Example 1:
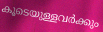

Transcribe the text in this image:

കൂടെയുള്ളവർക്കും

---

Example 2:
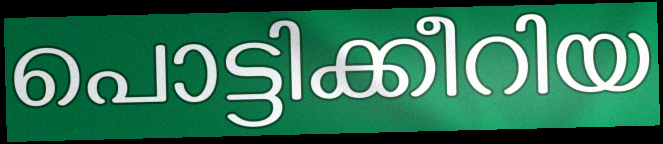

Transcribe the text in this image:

പൊട്ടിക്കീറിയ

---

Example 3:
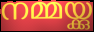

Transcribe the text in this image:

നമ്മയ്ക്കു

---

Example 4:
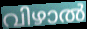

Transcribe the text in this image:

വിഴാൽ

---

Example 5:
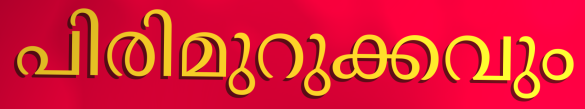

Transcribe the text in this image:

പിരിമുറുക്കവും